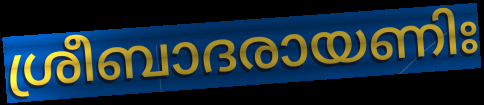
ശ്രീബാദരായണിഃ